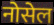
नोसेल